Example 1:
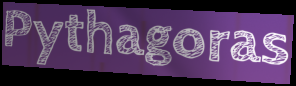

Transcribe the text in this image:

Pythagoras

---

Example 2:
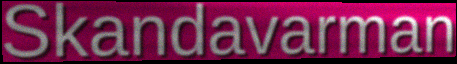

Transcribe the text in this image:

Skandavarman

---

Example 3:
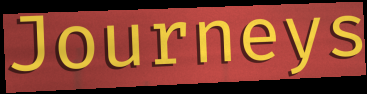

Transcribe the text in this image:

Journeys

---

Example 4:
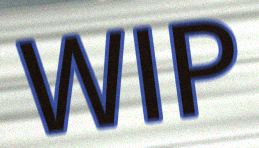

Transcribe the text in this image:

WIP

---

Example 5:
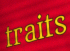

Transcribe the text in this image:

traits